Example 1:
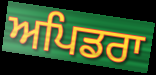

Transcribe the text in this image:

ਅਪਿਡਰਾ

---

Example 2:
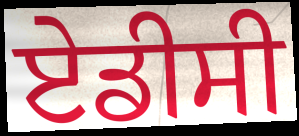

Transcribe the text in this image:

ਏਡੀਸੀ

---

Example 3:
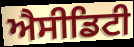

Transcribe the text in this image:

ਐਸੀਡਿਟੀ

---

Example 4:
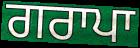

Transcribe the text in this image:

ਗਰਾਪਾ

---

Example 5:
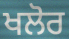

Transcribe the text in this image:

ਖਲੋਰ